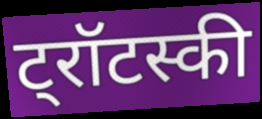
ट्रॉटस्की